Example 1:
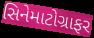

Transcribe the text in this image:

સિનેમાટોગ્રાફર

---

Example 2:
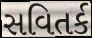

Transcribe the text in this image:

સવિતર્ક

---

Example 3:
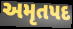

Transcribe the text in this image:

અમૃતપદ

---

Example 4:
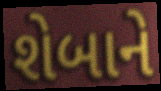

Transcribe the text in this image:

શેબાને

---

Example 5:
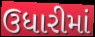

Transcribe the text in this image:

ઉધારીમાં